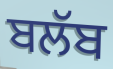
ਬਲੱਬ